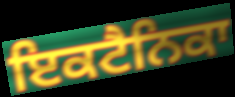
ਇਕਟੈਨਿਕਾ